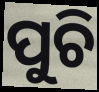
ପୁଚି